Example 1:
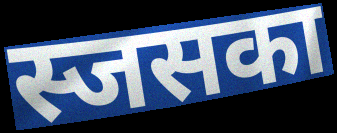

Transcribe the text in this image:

स्जसका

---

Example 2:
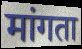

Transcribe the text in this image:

मांगता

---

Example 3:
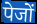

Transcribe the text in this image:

पेजों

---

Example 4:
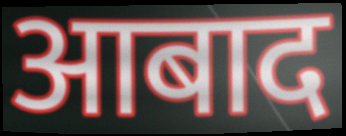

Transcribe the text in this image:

आबाद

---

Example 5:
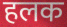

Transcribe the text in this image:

हलक